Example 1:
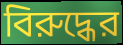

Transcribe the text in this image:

বিরুদ্ধের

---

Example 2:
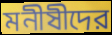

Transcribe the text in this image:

মনীষীদের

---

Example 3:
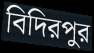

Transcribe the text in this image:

বিদিরপুর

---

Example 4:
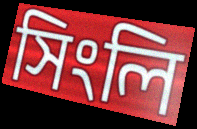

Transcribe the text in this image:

সিংলি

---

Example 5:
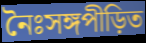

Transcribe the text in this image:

নৈঃসঙ্গপীড়িত